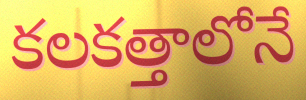
కలకత్తాలోనే